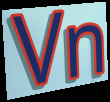
Vn